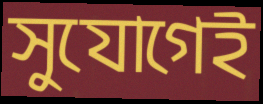
সুযোগেই